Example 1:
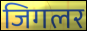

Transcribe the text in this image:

जिगलर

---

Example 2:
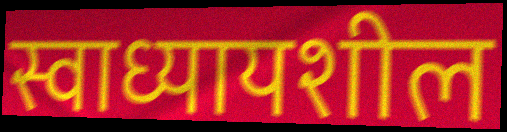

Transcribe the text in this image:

स्वाध्यायशील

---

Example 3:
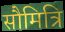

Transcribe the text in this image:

सौमित्रि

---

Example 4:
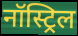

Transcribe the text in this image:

नॉस्ट्रिल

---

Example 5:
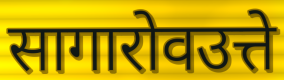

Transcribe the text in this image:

सागारोवउत्ते